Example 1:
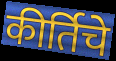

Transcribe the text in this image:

कीर्तिचे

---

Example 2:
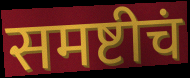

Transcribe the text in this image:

समष्टीचं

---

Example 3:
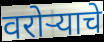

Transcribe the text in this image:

वरोऱ्याचे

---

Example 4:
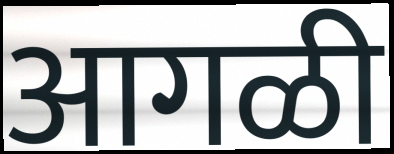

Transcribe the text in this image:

आगळी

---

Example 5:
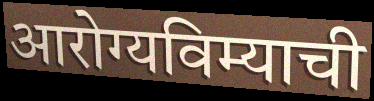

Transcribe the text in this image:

आरोग्यविम्याची